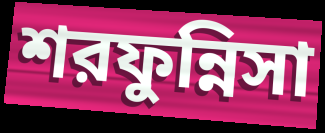
শরফুন্নিসা